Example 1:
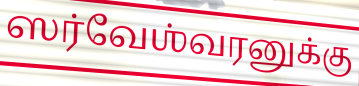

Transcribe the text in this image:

ஸர்வேஶ்வரனுக்கு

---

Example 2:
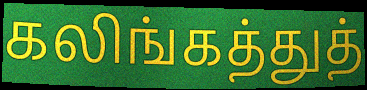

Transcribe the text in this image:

கலிங்கத்துத்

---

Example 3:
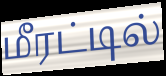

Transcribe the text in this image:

மீரட்டில்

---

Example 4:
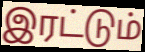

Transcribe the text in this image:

இரட்டும்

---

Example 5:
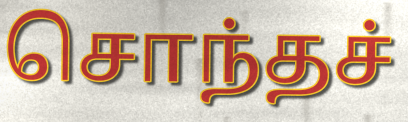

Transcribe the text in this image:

சொந்தச்